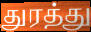
துரத்து